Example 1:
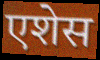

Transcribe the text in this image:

एशेस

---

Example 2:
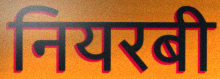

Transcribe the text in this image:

नियरबी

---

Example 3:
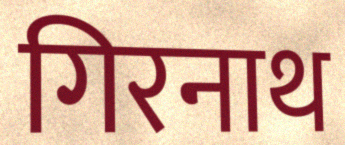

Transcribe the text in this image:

गिरनाथ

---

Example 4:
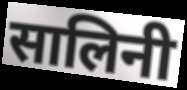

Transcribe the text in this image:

सालिनी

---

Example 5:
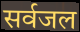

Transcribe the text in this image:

सर्वजल